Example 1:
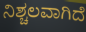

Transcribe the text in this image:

ನಿಶ್ಚಲವಾಗಿದೆ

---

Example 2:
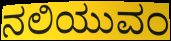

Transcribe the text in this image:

ನಲಿಯುವಂ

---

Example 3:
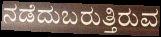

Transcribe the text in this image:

ನಡೆದುಬರುತ್ತಿರುವ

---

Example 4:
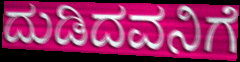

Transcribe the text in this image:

ದುಡಿದವನಿಗೆ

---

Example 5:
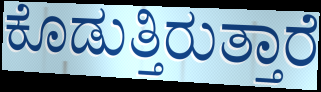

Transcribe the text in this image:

ಕೊಡುತ್ತಿರುತ್ತಾರೆ